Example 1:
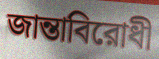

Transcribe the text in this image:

জান্তাবিরোধী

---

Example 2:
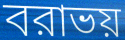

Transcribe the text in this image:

বরাভয়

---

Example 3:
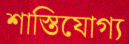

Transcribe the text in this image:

শাস্তিযোগ্য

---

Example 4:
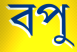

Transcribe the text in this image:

বপু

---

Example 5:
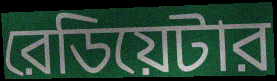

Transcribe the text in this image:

রেডিয়েটার